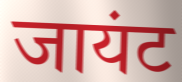
जायंट